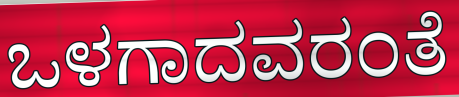
ಒಳಗಾದವರಂತೆ